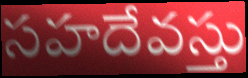
సహదేవస్తు